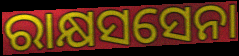
ରାକ୍ଷସସେନା